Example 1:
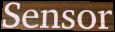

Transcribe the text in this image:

Sensor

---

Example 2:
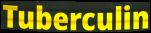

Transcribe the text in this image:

Tuberculin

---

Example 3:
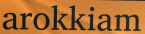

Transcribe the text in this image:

arokkiam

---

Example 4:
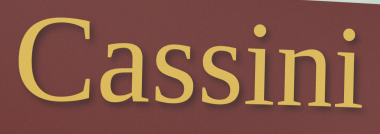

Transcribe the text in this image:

Cassini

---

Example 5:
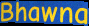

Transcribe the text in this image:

Bhawna